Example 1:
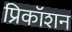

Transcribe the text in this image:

प्रिकॉशन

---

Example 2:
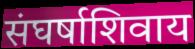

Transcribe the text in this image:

संघर्षाशिवाय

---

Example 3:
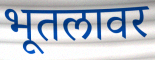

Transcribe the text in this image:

भूतलावर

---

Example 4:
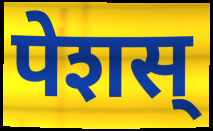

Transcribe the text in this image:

पेशस्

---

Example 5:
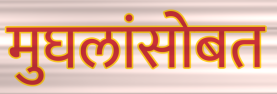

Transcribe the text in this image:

मुघलांसोबत